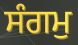
ਸੰਗਮੁ